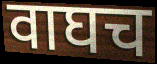
वाघच